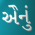
એેનું